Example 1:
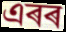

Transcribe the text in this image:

এৰৰ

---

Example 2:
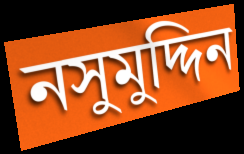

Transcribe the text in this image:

নসুমুদ্দিন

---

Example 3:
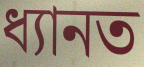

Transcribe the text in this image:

ধ্যানত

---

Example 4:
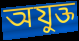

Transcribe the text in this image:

অযুক্ত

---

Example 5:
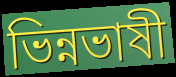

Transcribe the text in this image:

ভিন্নভাষী